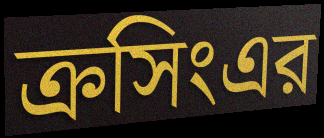
ক্রসিংএর